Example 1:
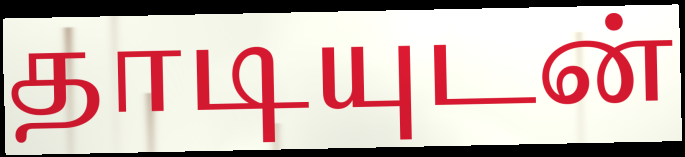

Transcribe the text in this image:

தாடியுடன்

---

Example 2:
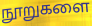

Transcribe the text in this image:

நூறுகளை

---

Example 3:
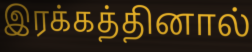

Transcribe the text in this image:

இரக்கத்தினால்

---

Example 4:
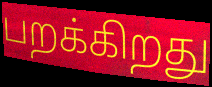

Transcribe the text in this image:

பறக்கிறது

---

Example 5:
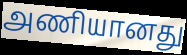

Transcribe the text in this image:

அணியானது